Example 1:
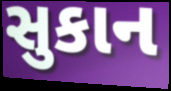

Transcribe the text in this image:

સુકાન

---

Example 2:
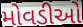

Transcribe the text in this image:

મોવડીઓ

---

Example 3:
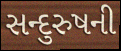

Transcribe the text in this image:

સન્દુરુષની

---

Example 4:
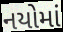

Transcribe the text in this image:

નયોમાં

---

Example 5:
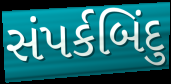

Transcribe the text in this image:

સંપર્કબિંદુ